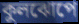
কুলঝোপে